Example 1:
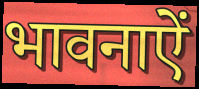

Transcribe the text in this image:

भावनाऐं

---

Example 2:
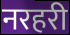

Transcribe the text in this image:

नरहरी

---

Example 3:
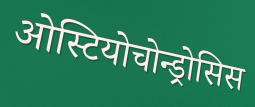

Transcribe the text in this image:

ओस्टियोचोन्ड्रोसिस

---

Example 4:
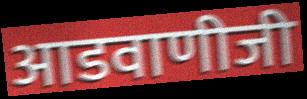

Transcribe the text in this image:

आडवाणीजी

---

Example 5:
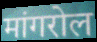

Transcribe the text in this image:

मांगरोल